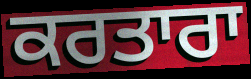
ਕਰਤਾਰਾ